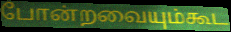
போன்றவையும்கூட